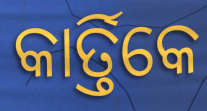
କାର୍ତ୍ତିକେ